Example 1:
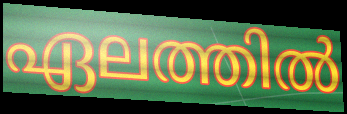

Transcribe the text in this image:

ഏലത്തിൽ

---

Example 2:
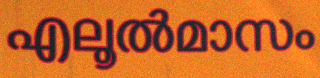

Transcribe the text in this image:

എലൂൽമാസം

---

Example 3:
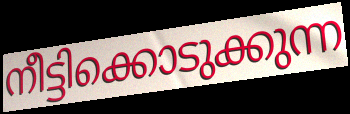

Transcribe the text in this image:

നീട്ടിക്കൊടുക്കുന്ന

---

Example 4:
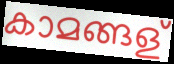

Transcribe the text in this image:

കാമങ്ങള്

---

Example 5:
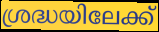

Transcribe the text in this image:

ശ്രദ്ധയിലേക്ക്